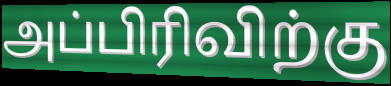
அப்பிரிவிற்கு